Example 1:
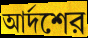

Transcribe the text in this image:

আর্দশের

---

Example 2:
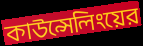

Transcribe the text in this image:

কাউন্সেলিংয়ের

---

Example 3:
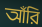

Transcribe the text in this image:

আঁরি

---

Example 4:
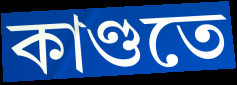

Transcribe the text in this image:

কাণ্ডতে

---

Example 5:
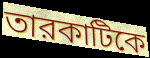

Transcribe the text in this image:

তারকাটিকে